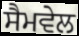
ਸੈਮਵੇਲ